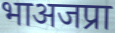
भाअजप्रा